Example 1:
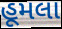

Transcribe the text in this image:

હૂમલા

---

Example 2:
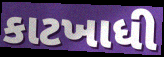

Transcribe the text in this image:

કાટખાધી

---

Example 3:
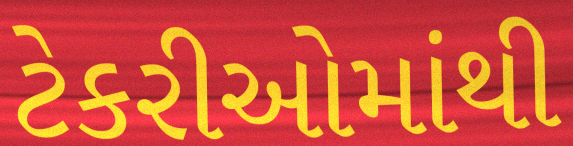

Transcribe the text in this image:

ટેકરીઓમાંથી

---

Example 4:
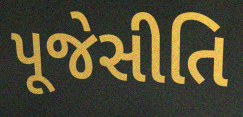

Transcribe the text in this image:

પૂજેસીતિ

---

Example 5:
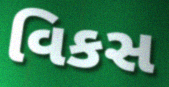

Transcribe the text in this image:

વિકસ